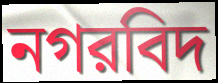
নগরবিদ